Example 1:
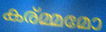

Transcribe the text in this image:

കര്മ്മമോ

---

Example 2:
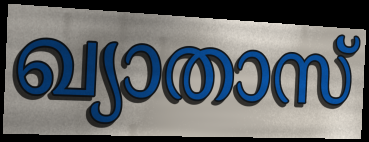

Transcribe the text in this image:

ഖ്യാതാസ്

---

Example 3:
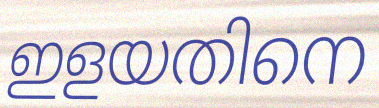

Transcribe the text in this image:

ഇളയതിനെ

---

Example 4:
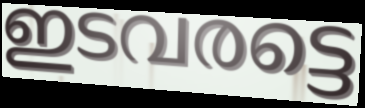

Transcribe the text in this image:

ഇടവരട്ടെ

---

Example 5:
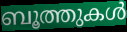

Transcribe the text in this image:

ബൂത്തുകൾ